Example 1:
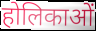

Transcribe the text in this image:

होलिकाओं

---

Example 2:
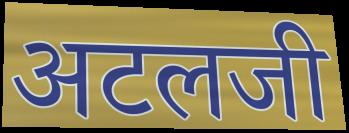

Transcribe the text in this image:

अटलजी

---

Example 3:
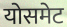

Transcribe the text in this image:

योसमेट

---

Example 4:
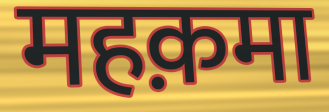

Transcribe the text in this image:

महक़मा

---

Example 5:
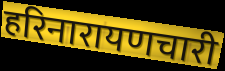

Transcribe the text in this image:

हरिनारायणचारी